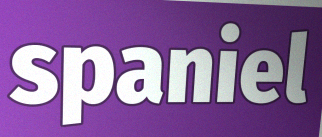
spaniel